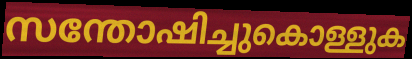
സന്തോഷിച്ചുകൊള്ളുക